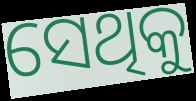
ସେଥିକୁ